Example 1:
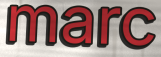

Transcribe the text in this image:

marc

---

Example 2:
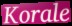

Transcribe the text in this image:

Korale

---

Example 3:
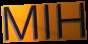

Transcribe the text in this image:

MIH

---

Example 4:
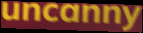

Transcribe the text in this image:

uncanny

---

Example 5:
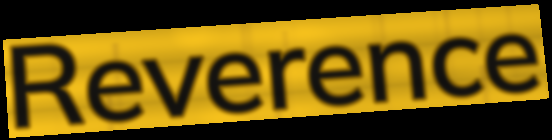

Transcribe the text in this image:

Reverence